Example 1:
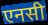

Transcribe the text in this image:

एनसी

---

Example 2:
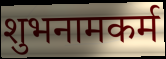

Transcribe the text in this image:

शुभनामकर्म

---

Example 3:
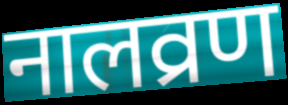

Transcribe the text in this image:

नालव्रण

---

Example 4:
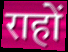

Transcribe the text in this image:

राहों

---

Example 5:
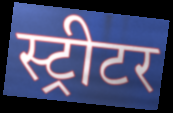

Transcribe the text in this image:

स्ट्रीटर